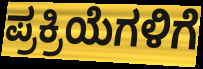
ಪ್ರಕ್ರಿಯೆಗಳಿಗೆ